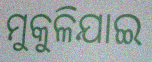
ମୁକୁଳିଯାଇ